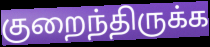
குறைந்திருக்க